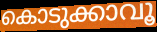
കൊടുക്കാവൂ